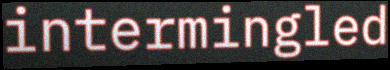
intermingled